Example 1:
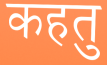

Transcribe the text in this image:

कहतु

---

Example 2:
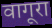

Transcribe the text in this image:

वागूरा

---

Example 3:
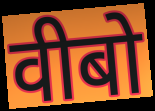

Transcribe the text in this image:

वीबो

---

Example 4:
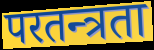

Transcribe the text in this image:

परतन्त्रता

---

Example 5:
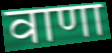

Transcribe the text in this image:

वाणा